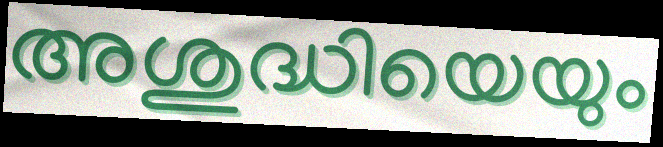
അശുദ്ധിയെയും